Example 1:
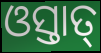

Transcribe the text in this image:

ଓସ୍ତାତ୍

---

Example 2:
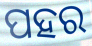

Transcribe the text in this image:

ପହର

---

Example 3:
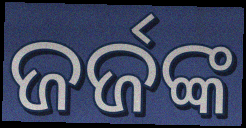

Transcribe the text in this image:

ଜର୍ଜଙ୍କ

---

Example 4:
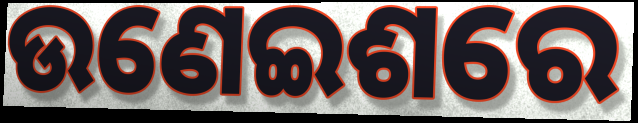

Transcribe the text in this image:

ଉଣେଇଶରେ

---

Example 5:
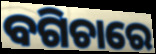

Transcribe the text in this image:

ବଗିଚାରେ